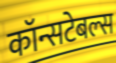
कॉन्सटेबल्स